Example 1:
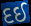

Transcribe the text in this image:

દઈ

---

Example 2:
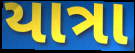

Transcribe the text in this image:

યાત્રા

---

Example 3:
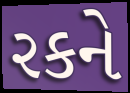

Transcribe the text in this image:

રકને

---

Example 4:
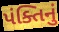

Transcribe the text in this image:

પંક્તિનું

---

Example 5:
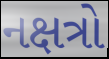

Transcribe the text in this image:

નક્ષત્રો